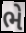
ભે